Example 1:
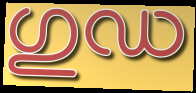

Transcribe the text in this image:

ഗുഡ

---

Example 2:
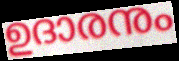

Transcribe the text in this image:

ഉദാരനും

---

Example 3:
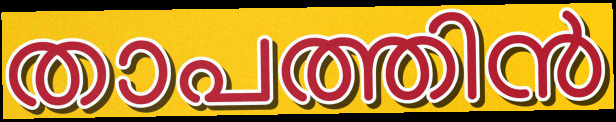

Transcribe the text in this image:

താപത്തിൻ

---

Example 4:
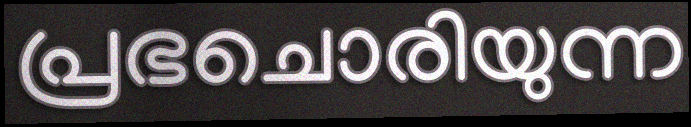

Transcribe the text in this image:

പ്രഭചൊരിയുന്ന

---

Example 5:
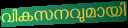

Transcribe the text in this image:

വികസനവുമായി